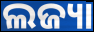
ଲଜ୍ୟା